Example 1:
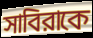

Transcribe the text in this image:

সাবিরাকে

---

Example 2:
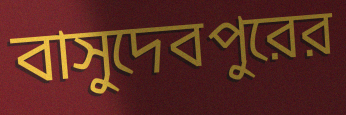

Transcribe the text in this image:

বাসুদেবপুরের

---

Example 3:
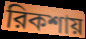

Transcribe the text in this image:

রিকশায়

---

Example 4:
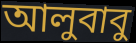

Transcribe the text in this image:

আলুবাবু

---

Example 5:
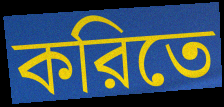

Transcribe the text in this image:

করিতে